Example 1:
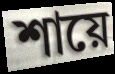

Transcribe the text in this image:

শায়ে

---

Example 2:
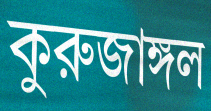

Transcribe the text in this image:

কুরুজাঙ্গল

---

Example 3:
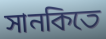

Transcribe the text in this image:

সানকিতে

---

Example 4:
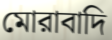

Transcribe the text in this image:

মোরাবাদি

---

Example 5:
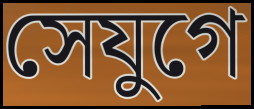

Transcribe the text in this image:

সেযুগে